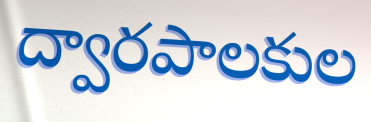
ద్వారపాలకుల